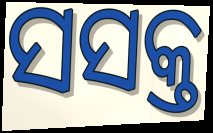
ସସକ୍ତ